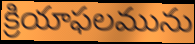
క్రియాఫలమును